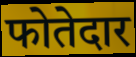
फोतेदार